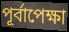
পূর্বাপেক্ষা